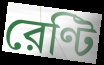
রেণ্টি